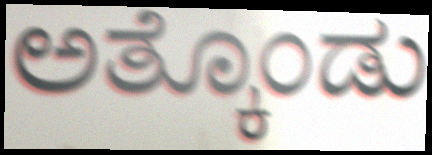
ಅತ್ಕೊಂಡು